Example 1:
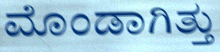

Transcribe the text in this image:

ಮೊಂಡಾಗಿತ್ತು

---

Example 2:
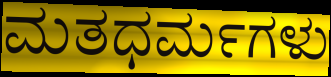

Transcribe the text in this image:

ಮತಧರ್ಮಗಳು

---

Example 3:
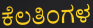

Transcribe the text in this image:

ಕೆಲತಿಂಗಳ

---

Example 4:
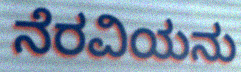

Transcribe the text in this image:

ನೆರವಿಯನು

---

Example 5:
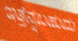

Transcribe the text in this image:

ಇತ್ತೆನ್ನಬಹುದು